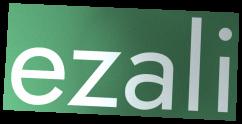
ezali